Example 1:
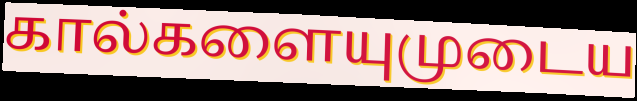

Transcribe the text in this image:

கால்களையுமுடைய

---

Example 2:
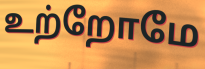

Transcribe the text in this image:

உற்றோமே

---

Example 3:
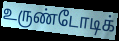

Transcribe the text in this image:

உருண்டோடிக்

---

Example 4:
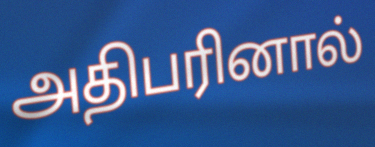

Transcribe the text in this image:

அதிபரினால்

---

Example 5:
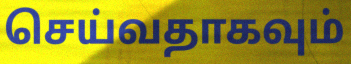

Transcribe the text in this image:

செய்வதாகவும்